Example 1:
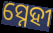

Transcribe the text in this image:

ସ୍ନେହୀ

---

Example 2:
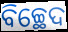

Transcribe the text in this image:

ବିଚ୍ଛେଦ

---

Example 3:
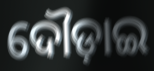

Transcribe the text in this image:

ଦୌଡ଼ାଇ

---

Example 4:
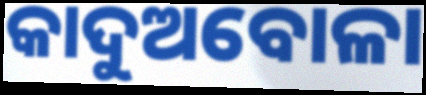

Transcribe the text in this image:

କାଦୁଅବୋଳା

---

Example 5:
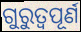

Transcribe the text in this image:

ଗୁରୁତ୍ୱପୂର୍ଣ